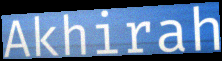
Akhirah